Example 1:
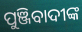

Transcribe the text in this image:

ପୁଞ୍ଜିବାଦୀଙ୍କ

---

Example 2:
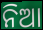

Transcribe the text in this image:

ନିଆ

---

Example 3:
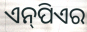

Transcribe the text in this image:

ଏନ୍‌ପିଏର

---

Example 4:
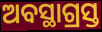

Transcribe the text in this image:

ଅବସ୍ଥାଗ୍ରସ୍ତ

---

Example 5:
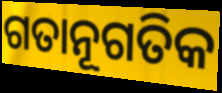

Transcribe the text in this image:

ଗତାନୂଗତିକ